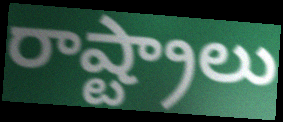
రాష్ట్రాలు